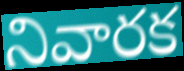
నివారక